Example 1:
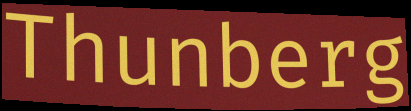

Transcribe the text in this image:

Thunberg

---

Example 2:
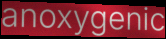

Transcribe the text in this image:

anoxygenic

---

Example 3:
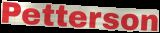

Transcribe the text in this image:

Petterson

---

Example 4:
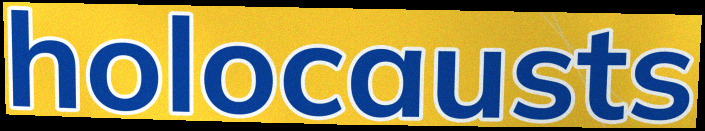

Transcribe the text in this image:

holocausts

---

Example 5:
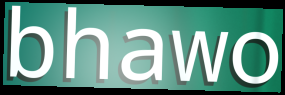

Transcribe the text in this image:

bhawo